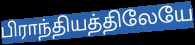
பிராந்தியத்திலேயே